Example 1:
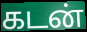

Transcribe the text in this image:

கடன்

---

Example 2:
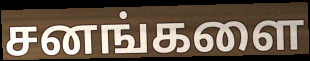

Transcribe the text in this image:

சனங்களை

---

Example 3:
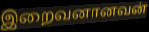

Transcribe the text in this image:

இறைவனானவன்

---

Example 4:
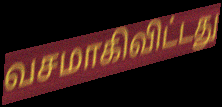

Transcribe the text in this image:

வசமாகிவிட்டது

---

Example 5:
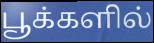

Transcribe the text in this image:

பூக்களில்